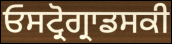
ਓਸਟ੍ਰੋਗ੍ਰਾਡਸਕੀ